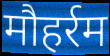
मौहर्रम